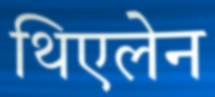
थिएलेन